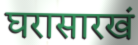
घरासारखं